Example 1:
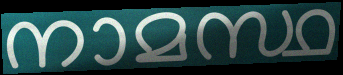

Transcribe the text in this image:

നാമസ്ഥ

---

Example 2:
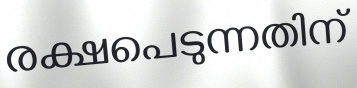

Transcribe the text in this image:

രക്ഷപെടുന്നതിന്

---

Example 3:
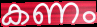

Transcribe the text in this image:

കണം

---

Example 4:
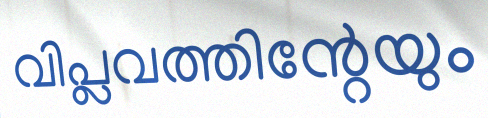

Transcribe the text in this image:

വിപ്ലവത്തിന്റേയും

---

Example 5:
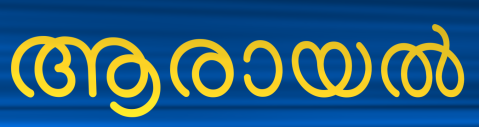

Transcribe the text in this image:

ആരായൽ